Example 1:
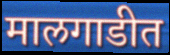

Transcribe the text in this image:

मालगाडीत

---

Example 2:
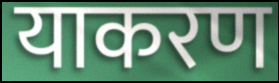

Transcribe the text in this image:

याकरण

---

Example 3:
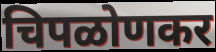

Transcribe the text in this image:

चिपळोणकर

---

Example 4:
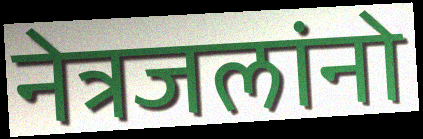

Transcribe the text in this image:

नेत्रजलांनो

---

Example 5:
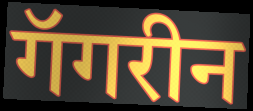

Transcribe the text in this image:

गॅगरीन